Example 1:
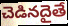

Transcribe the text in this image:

చెడినదైతే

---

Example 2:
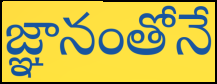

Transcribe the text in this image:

జ్ఞానంతోనే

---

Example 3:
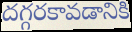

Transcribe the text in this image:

దగ్గరకావడానికి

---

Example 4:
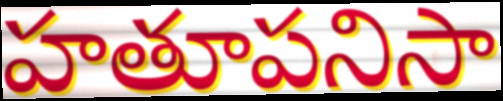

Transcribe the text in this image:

హతూపనిసా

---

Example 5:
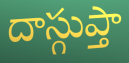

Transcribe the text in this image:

దాస్గుప్తా